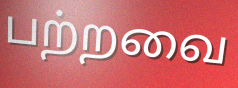
பற்றவை